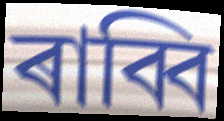
ৰাব্বি